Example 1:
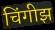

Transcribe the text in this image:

चिंगीझ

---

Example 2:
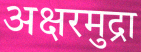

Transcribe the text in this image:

अक्षरमुद्रा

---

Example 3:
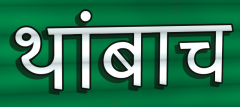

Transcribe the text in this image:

थांबाच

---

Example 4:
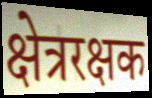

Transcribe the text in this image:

क्षेत्ररक्षक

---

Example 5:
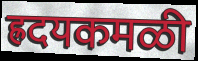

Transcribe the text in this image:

ह्रदयकमळी